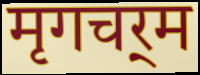
मृगचर्म